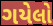
ગયેલો